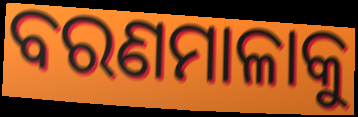
ବରଣମାଳାକୁ